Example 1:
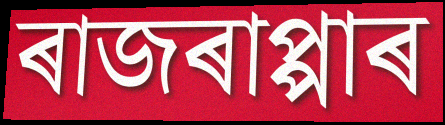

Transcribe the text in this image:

ৰাজৰাপ্পাৰ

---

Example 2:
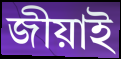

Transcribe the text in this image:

জীয়াই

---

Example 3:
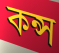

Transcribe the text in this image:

কন্স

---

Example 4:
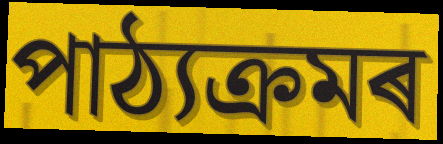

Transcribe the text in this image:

পাঠ্যক্ৰমৰ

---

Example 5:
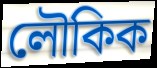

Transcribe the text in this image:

লৌকিক